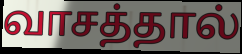
வாசத்தால்